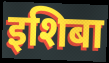
इशिबा